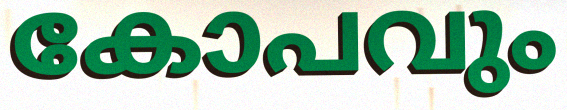
കോപവും